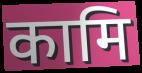
कामि